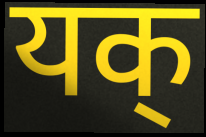
यक्